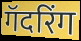
गॅदरिंग